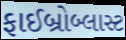
ફાઈબ્રોબ્લાસ્ટ